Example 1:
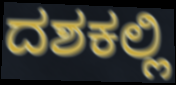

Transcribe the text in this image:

ದಶಕಲ್ಲಿ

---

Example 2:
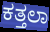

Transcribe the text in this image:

ಕತ್ತಲಾ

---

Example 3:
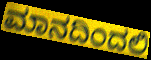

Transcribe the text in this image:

ಮಾನದಿಂದಲಿ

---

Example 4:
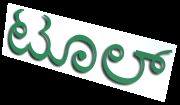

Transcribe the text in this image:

ಟೂಲ್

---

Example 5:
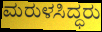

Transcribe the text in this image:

ಮರುಳಸಿದ್ಧರು